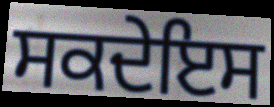
ਸਕਦੇਇਸ